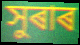
সুৰাৰ